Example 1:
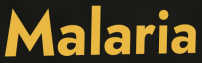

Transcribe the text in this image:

Malaria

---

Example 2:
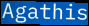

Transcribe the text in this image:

Agathis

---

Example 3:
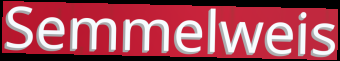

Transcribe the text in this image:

Semmelweis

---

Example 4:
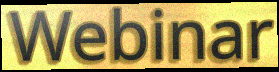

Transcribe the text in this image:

Webinar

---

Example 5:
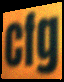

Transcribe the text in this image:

cfg